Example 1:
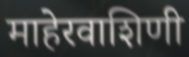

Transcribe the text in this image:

माहेरवाशिणी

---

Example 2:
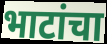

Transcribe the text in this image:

भाटांचा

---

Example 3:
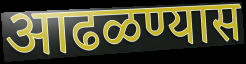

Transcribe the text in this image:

आढळण्यास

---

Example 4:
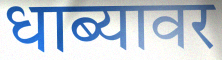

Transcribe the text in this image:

धाब्यावर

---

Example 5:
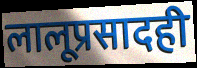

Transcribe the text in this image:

लालूप्रसादही